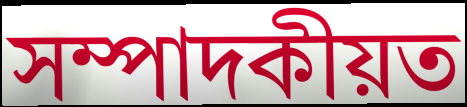
সম্পাদকীয়ত